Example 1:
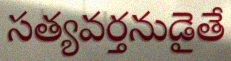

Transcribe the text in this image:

సత్యవర్తనుడైతే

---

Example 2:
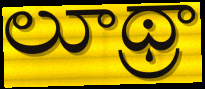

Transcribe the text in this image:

లూథ్రా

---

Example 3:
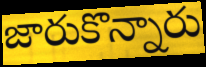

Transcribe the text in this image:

జారుకొన్నారు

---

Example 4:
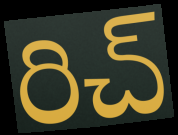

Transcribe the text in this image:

రిచ్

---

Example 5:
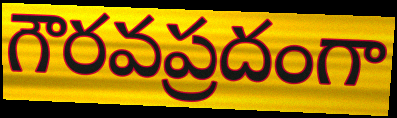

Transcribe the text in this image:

గౌరవప్రదంగా